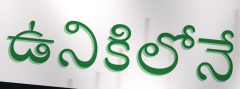
ఉనికిలోనే